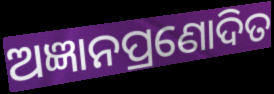
ଅଜ୍ଞାନପ୍ରଣୋଦିତ